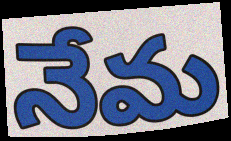
నేమ